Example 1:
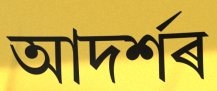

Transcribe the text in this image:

আদৰ্শৰ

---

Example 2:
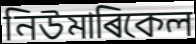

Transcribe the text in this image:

নিউমাৰিকেল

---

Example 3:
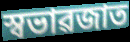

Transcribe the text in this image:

স্বভাৱজাত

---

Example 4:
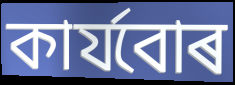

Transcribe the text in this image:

কাৰ্যবোৰ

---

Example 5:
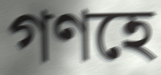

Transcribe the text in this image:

গণহে